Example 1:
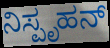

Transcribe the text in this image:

ನಿಸ್ಪೃಹನ್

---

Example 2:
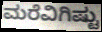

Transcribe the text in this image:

ಮರೆವಿಗಿಷ್ಟು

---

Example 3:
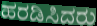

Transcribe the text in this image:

ಹರಡಿಸಿದರು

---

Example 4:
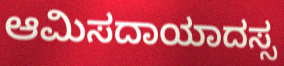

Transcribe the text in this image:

ಆಮಿಸದಾಯಾದಸ್ಸ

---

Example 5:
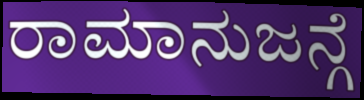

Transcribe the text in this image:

ರಾಮಾನುಜನ್ಗೆ